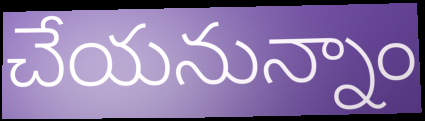
చేయనున్నాం